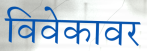
विवेकावर